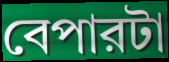
বেপারটা